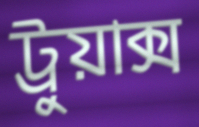
ট্রুয়াক্স